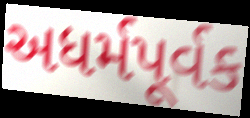
અધર્મપૂર્વક